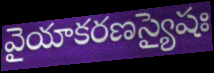
వైయాకరణస్యైషః